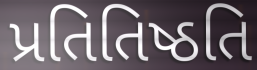
પ્રતિતિષ્ઠતિ